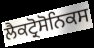
ਲੈਕਟ੍ਰੋਸੋਨਿਕਸ